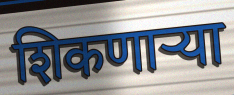
शिकणाऱ्या